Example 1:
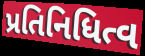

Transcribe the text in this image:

પ્રતિનિધિત્વ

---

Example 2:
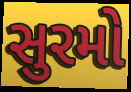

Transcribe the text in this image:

સુરમો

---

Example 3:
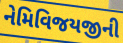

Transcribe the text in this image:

નેમિવિજયજીની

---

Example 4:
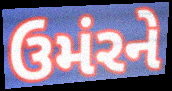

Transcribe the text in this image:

ઉમંરને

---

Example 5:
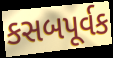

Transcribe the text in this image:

કસબપૂર્વક